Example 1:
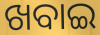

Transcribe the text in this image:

ଖବାଇ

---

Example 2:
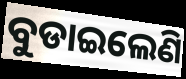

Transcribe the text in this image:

ବୁଡାଇଲେଣି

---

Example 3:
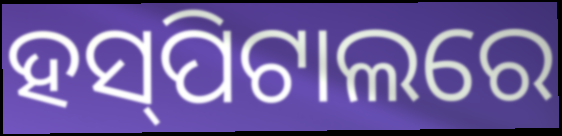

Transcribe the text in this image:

ହସ୍‍ପିଟାଲରେ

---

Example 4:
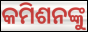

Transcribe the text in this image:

କମିଶନଙ୍କୁ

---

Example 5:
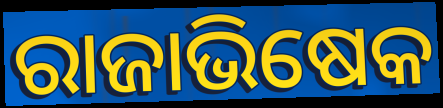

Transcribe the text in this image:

ରାଜାଭିଷେକ